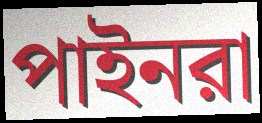
পাইনরা